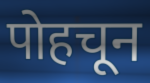
पोहचून